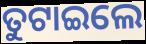
ତୁଟାଇଲେ